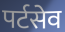
पर्टसेव